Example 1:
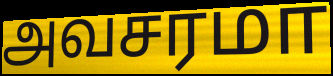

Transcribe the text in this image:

அவசரமா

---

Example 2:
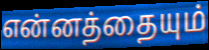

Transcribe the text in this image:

என்னத்தையும்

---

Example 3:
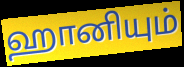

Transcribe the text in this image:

ஹானியும்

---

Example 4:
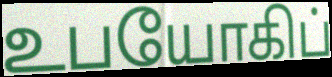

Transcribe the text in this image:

உபயோகிப்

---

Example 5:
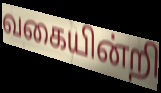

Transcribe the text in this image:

வகையின்றி